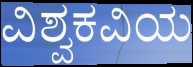
ವಿಶ್ವಕವಿಯ